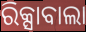
ରିକ୍ସାବାଲା